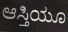
ಆಸ್ತಿಯೂ